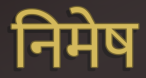
निमेष